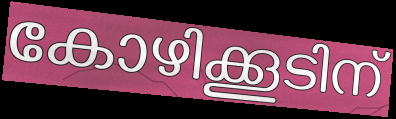
കോഴിക്കൂടിന്